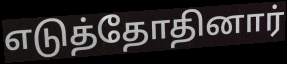
எடுத்தோதினார்